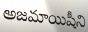
అజమాయిషీని